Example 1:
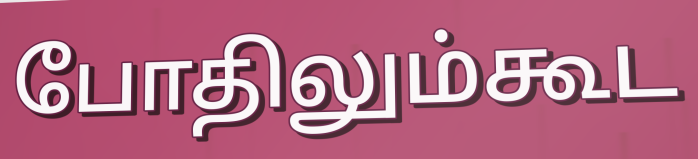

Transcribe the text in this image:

போதிலும்கூட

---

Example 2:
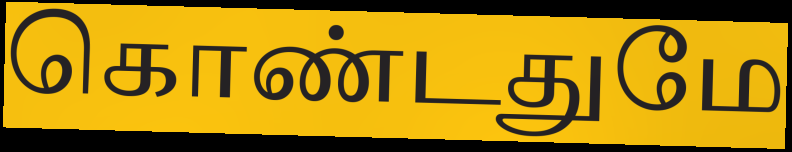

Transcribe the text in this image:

கொண்டதுமே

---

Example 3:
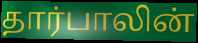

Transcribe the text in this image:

தார்பாலின்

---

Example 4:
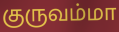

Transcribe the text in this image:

குருவம்மா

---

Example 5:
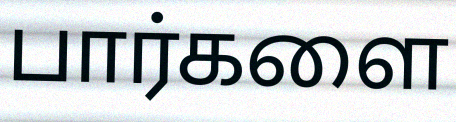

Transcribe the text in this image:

பார்களை